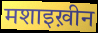
मशाइख़ीन